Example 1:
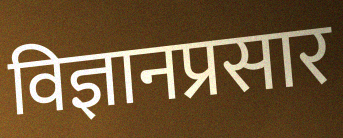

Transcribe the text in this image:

विज्ञानप्रसार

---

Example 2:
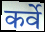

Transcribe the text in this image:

कर्वे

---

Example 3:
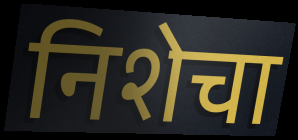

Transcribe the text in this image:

निशेचा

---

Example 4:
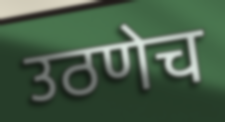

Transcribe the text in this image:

उठणेच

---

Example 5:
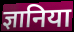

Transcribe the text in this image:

ज्ञानिया